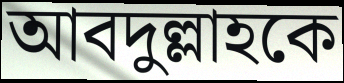
আবদুল্লাহকে